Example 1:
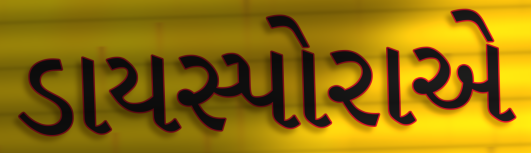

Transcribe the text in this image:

ડાયસ્પોરાએ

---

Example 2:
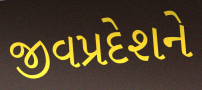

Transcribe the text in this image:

જીવપ્રદેશને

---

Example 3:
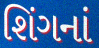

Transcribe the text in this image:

શિંગનાં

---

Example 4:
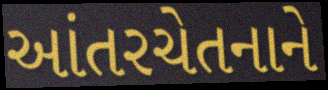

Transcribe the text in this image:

આંતરચેતનાને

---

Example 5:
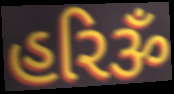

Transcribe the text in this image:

હરિૐ